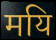
मयि